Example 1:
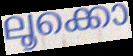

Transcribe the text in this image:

ലൂക്കൊ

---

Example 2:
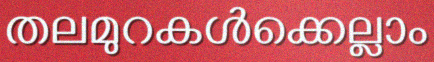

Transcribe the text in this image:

തലമുറകൾക്കെല്ലാം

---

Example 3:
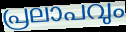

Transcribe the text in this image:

പ്രലാപവും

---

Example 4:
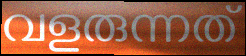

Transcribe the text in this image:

വളരുന്നത്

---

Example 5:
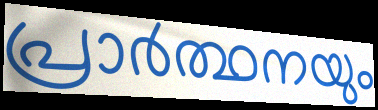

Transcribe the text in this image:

പ്രാർത്ഥനയും